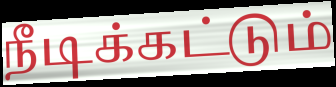
நீடிக்கட்டும்